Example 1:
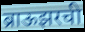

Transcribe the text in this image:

ब्राऊझरची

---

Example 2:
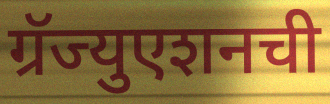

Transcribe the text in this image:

ग्रॅज्युएशनची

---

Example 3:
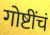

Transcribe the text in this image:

गोष्टींचं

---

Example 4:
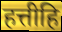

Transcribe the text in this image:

हत्तीहि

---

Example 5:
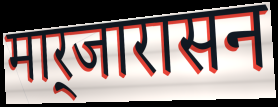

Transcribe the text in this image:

मार्जारासन